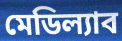
মেডিল্যাব